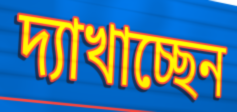
দ্যাখাচ্ছেন